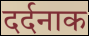
दर्दनाक